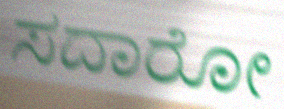
ಸದಾರೋ